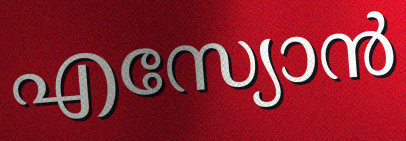
എസ്യോൻ